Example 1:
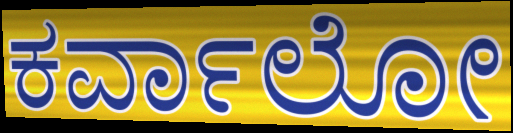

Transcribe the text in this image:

ಕರ್ವಾಲೋ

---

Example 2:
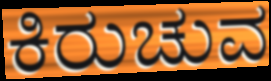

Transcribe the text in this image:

ಕಿರುಚುವ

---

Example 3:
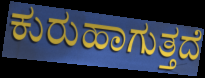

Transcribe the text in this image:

ಕುರುಹಾಗುತ್ತದೆ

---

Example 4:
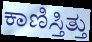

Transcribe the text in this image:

ಕಾಣಿಸ್ತಿತ್ತು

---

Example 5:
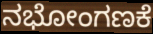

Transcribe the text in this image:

ನಭೋಂಗಣಕೆ